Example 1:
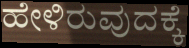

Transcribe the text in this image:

ಹೇಳಿರುವುದಕ್ಕೆ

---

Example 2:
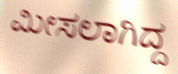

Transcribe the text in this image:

ಮೀಸಲಾಗಿದ್ದ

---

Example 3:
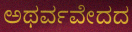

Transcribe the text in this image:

ಅಥರ್ವವೇದದ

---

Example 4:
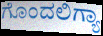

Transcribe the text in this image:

ಗೊಂದಲಿಗ್ಯಾ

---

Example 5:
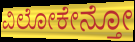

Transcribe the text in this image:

ವಿಲೋಕೇನ್ತೋ